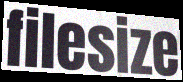
filesize